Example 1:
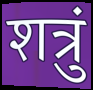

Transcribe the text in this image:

शत्रुं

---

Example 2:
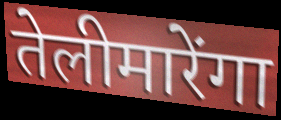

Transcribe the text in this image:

तेलीमारेंगा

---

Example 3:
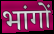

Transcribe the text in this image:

भांगों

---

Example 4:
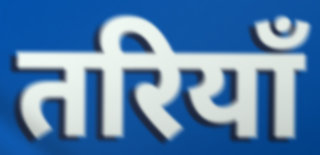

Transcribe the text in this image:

तरियाँ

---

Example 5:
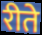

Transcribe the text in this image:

रीते